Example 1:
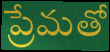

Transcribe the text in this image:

ప్రేమతో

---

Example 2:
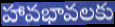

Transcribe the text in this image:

హావభావలకు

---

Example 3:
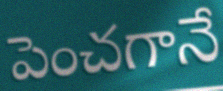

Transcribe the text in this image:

పెంచగానే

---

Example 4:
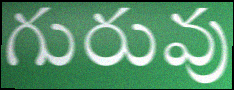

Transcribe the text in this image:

గురువు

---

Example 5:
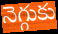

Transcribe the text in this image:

నెగ్గుకు